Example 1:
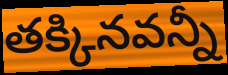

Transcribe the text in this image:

తక్కినవన్నీ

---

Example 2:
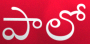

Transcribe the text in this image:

పాలో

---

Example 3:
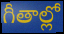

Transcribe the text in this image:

గీతాల్లో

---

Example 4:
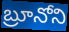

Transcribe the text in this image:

బ్రూనోని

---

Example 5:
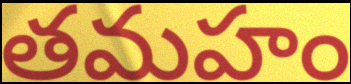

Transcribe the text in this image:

తమహం